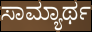
ಸಾಮ್ಯಾರ್ಥ